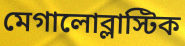
মেগালোব্লাস্টিক